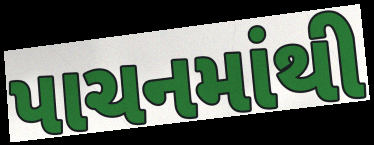
પાચનમાંથી